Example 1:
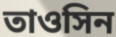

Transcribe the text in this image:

তাওসিন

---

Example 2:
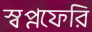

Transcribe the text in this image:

স্বপ্নফেরি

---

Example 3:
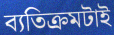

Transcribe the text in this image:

ব্যতিক্রমটাই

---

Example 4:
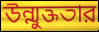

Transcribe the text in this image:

উন্মুক্ততার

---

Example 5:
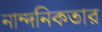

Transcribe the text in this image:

নান্দনিকতার